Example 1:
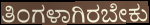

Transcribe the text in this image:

ತಿಂಗಳಾಗಿರಬೇಕು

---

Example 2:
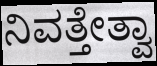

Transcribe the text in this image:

ನಿವತ್ತೇತ್ವಾ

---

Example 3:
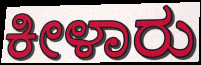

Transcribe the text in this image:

ಕೀಳಾರು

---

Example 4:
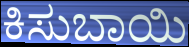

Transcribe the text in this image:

ಕಿಸುಬಾಯಿ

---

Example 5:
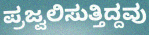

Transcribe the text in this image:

ಪ್ರಜ್ವಲಿಸುತ್ತಿದ್ದವು